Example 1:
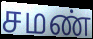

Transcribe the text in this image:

சமண்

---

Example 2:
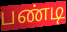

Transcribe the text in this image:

பண்டி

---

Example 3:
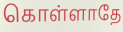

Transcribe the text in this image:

கொள்ளாதே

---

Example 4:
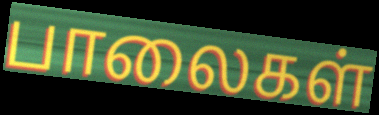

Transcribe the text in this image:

பாலைகள்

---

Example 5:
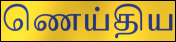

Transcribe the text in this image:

ணெய்திய